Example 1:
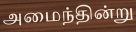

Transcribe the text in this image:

அமைந்தின்று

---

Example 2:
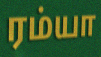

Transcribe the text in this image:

ரம்யா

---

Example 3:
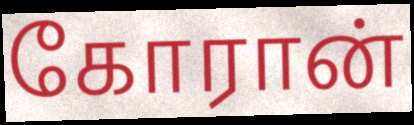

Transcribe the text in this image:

கோரான்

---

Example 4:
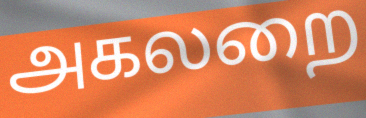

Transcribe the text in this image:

அகலறை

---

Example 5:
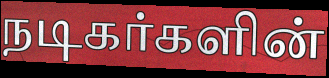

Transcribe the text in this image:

நடிகர்களின்